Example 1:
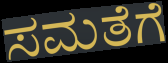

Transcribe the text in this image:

ಸಮತೆಗೆ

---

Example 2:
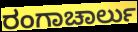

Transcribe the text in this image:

ರಂಗಾಚಾರ್ಲು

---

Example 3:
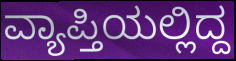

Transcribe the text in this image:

ವ್ಯಾಪ್ತಿಯಲ್ಲಿದ್ದ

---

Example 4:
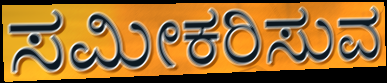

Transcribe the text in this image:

ಸಮೀಕರಿಸುವ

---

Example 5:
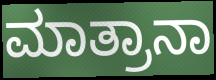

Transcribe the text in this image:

ಮಾತ್ರಾನಾ